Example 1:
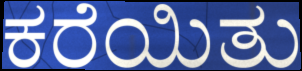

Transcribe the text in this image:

ಕರೆಯಿತು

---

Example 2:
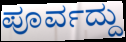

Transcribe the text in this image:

ಪೂರ್ವದ್ದು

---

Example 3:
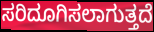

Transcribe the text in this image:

ಸರಿದೂಗಿಸಲಾಗುತ್ತದೆ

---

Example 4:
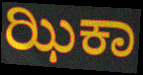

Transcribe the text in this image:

ಝಿಕಾ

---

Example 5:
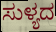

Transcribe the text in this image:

ಸುಳ್ಯದ